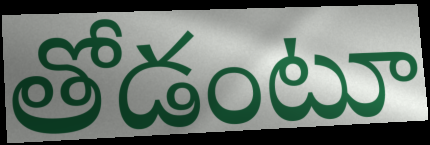
తోడంటూ